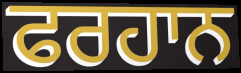
ਫਰਹਾਨ